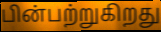
பின்பற்றுகிறது